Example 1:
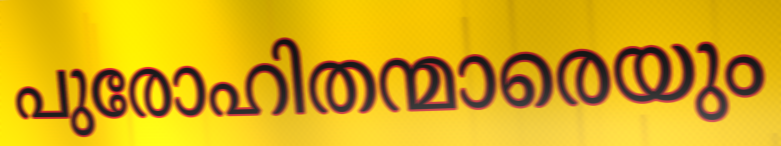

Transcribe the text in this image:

പുരോഹിതന്മാരെയും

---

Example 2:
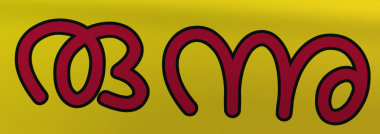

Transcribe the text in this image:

രുന്നു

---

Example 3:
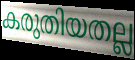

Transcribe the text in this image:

കരുതിയതല്ല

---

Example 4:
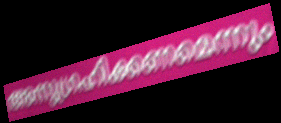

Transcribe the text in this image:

അനുഗ്രഹിക്കണമെന്നും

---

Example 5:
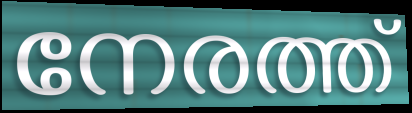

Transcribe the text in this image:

നേരത്ത്